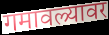
गमावल्यावर